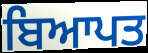
ਬਿਆਪਤ